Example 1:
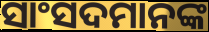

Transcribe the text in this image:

ସାଂସଦମାନଙ୍କ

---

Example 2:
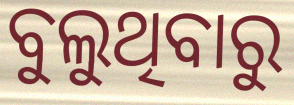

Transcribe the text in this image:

ବୁଲୁଥିବାରୁ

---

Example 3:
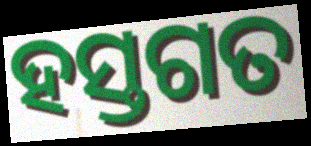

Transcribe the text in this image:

ହସ୍ତଗତ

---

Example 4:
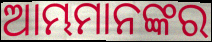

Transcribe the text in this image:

ଆମ୍ଭମାନଙ୍କର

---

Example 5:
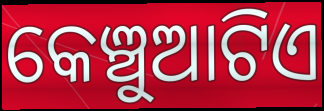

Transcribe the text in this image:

କେଞ୍ଚୁଆଟିଏ